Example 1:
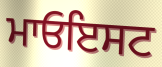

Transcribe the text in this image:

ਮਾਓਇਸਟ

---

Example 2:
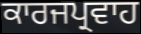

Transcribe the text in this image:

ਕਾਰਜਪ੍ਰਵਾਹ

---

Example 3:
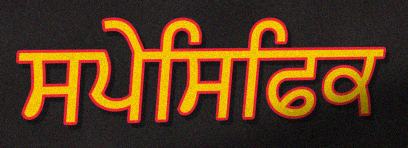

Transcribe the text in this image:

ਸਪੇਸਿਫਿਕ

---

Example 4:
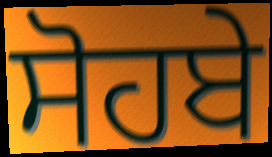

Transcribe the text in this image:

ਸੋਹਬੇ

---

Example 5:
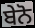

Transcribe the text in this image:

ਬੇਨੋ